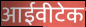
आईवीटेक